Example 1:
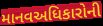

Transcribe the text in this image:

માનવઅધિકારોની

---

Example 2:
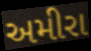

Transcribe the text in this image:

અમીરા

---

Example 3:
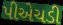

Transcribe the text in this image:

પીએચડી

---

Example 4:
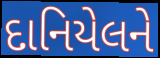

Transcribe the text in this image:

દાનિયેલને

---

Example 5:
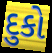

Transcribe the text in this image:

દુકો